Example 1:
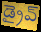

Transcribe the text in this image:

డ్రైవ్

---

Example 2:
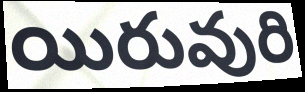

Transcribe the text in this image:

యిరువురి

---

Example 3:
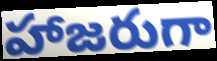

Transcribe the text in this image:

హాజరుగా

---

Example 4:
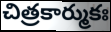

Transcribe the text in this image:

చిత్రకార్ముకః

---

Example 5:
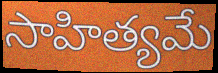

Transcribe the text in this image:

సాహిత్యమే